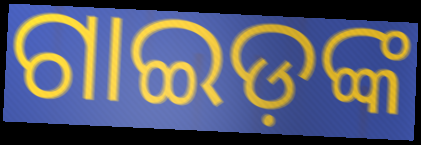
ଗାଇଡ଼ଙ୍କ